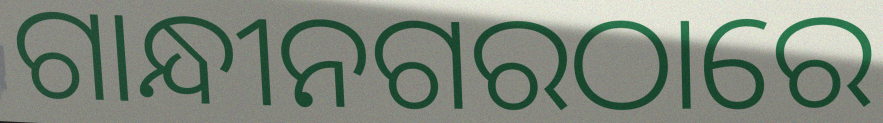
ଗାନ୍ଧୀନଗରଠାରେ